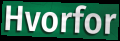
Hvorfor